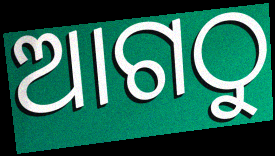
ଆଗଠୁ